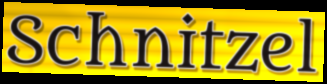
Schnitzel